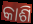
କାଶି